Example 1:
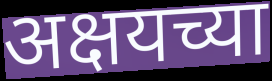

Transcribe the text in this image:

अक्षयच्या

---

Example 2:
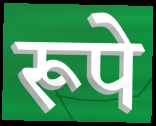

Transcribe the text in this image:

रूपे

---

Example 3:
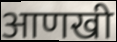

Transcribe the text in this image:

आणखी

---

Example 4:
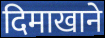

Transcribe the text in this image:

दिमाखाने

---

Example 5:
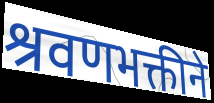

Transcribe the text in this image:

श्रवणभक्तीने